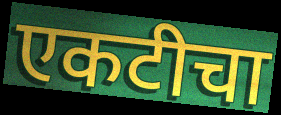
एकटीचा